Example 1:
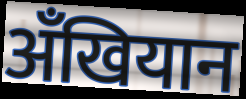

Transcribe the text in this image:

अँखियान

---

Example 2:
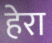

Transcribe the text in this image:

हेरा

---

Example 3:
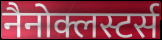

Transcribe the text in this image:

नैनोक्लस्टर्स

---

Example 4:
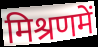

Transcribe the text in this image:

मिश्रणमें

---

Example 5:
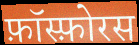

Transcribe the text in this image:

फ़ॉस्फ़ोरस